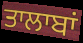
ਤਾਲਾਬਾਂ